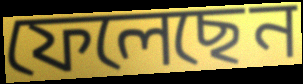
ফেলেছেন